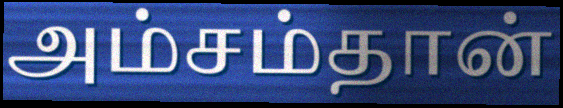
அம்சம்தான்